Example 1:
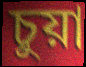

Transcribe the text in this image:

চুয়া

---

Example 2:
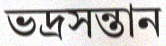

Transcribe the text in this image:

ভদ্রসন্তান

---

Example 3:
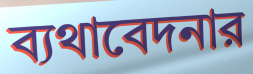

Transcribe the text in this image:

ব্যথাবেদনার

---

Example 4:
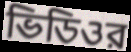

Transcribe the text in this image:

ভিডিওর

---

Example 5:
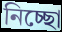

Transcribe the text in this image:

নিচ্ছো